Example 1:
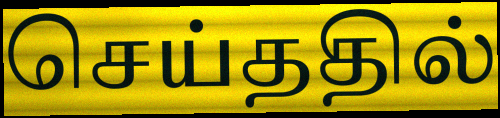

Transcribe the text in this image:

செய்ததில்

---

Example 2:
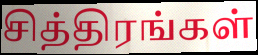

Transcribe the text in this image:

சித்திரங்கள்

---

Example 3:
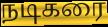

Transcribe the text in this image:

நடிகரை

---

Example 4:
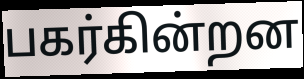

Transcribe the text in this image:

பகர்கின்றன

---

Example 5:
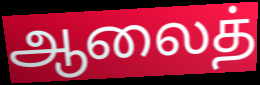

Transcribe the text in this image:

ஆலைத்